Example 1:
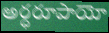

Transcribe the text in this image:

అర్ధరూపాయో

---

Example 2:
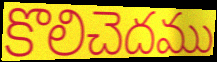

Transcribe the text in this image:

కొలిచెదము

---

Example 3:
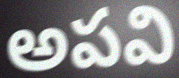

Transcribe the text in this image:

అపవి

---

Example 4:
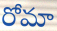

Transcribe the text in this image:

రోమా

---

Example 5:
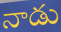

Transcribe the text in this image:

నాడు